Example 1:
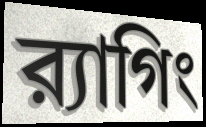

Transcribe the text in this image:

র‍্যাগিং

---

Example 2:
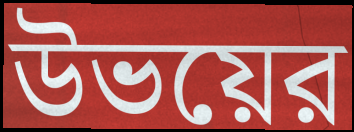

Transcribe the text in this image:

উভয়ের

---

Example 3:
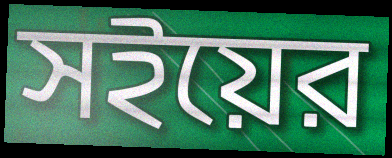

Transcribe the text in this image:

সইয়ের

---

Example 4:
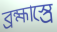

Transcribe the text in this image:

ব্রহ্মাস্ত্রে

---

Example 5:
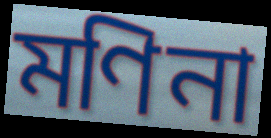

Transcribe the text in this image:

মণিনা